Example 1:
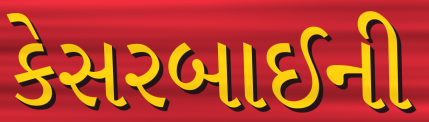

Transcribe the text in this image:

કેસરબાઈની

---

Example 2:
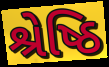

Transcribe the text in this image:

શ્રેષ્ઠિ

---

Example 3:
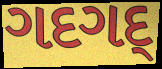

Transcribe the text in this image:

ગદગદ્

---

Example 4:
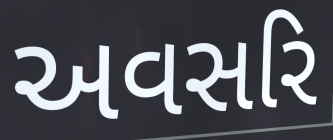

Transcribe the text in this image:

અવસરિ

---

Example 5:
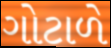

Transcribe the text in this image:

ગોટાળે